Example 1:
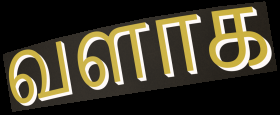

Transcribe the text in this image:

வளாக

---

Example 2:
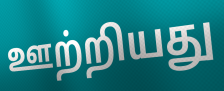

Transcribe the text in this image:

ஊற்றியது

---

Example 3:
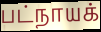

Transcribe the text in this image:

பட்நாயக்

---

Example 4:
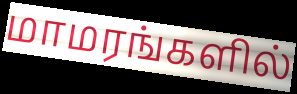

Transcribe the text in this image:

மாமரங்களில்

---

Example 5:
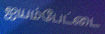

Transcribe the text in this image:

ஐயம்பேட்டை